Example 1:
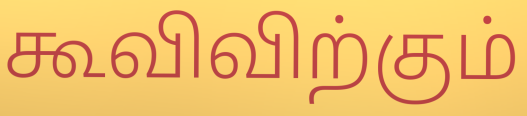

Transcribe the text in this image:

கூவிவிற்கும்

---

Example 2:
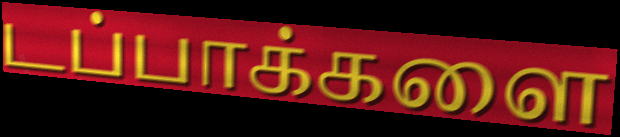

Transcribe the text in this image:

டப்பாக்களை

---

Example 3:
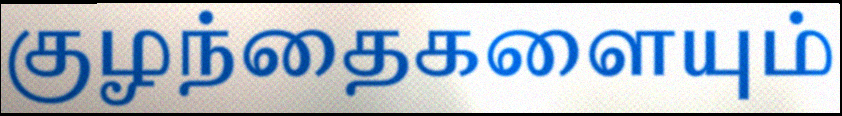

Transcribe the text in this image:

குழந்தைகளையும்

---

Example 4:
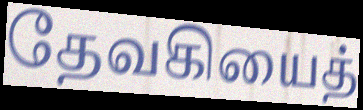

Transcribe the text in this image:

தேவகியைத்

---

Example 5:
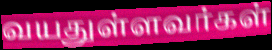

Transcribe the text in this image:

வயதுள்ளவர்கள்